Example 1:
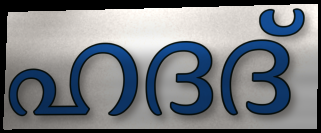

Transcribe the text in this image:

ഹദദ്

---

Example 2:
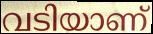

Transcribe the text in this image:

വടിയാണ്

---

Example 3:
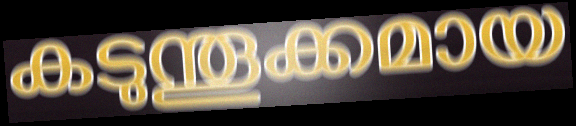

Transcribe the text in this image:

കടുന്തൂക്കമായ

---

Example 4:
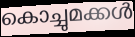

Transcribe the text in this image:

കൊച്ചുമക്കൾ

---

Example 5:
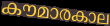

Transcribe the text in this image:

കൗമാരകാല